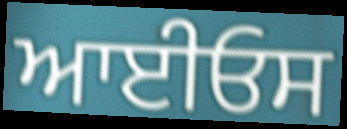
ਆਈਓਸ